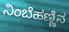
ನಿಂಬೆಹಣ್ಣಿನ